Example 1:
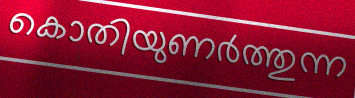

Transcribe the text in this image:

കൊതിയുണർത്തുന്ന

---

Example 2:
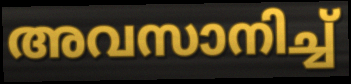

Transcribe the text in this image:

അവസാനിച്ച്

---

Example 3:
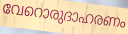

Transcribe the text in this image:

വേറൊരുദാഹരണം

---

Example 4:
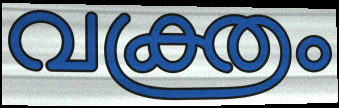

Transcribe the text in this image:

വക്ത്രം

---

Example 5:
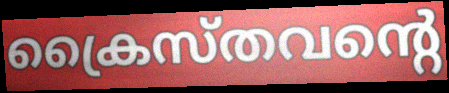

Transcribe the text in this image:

ക്രൈസ്തവന്റെ